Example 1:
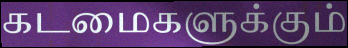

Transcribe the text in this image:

கடமைகளுக்கும்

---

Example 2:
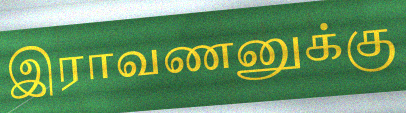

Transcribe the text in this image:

இராவணனுக்கு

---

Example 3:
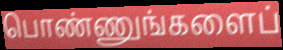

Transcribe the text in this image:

பொண்ணுங்களைப்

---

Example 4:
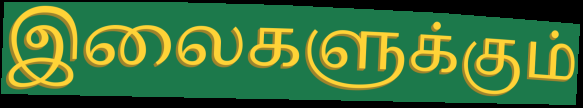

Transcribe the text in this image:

இலைகளுக்கும்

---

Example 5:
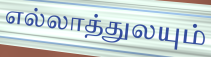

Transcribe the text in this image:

எல்லாத்துலயும்